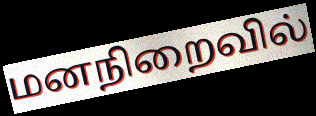
மனநிறைவில்